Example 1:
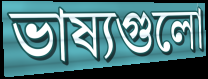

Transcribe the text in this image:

ভাষ্যগুলো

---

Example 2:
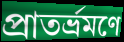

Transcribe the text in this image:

প্রাতর্ভ্রমণে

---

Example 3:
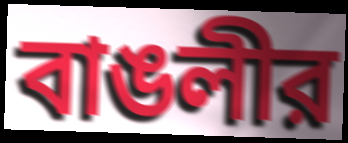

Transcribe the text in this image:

বাঙলীর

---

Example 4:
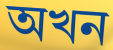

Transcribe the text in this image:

অখন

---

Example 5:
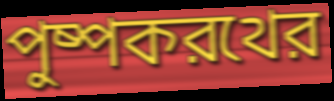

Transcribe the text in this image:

পুষ্পকরথের